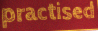
practised